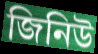
জিনিউ